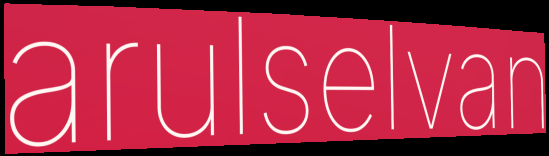
arulselvan